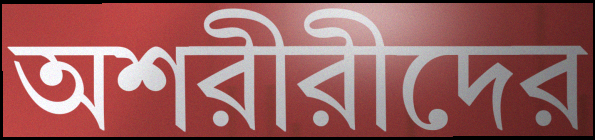
অশরীরীদের